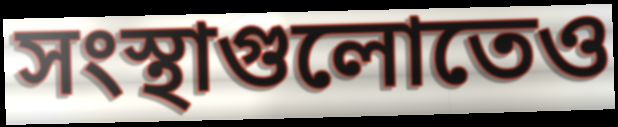
সংস্থাগুলোতেও